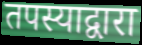
तपस्याद्वारा